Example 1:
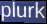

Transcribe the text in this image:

plurk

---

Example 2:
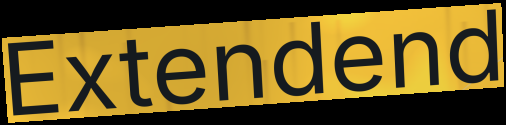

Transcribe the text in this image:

Extendend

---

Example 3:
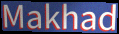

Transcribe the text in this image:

Makhad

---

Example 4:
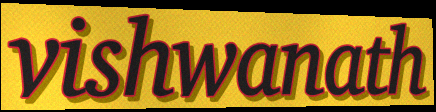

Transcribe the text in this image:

vishwanath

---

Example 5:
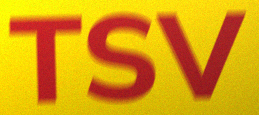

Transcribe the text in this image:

TSV